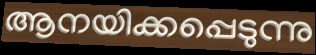
ആനയിക്കപ്പെടുന്നു